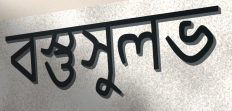
বস্তুসুলভ